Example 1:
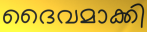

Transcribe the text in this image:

ദൈവമാക്കി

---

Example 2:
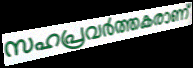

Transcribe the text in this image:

സഹപ്രവർത്തകരാണ്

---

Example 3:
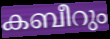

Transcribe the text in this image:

കബീറും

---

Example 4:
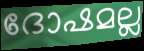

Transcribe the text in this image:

ദോഷമല്ല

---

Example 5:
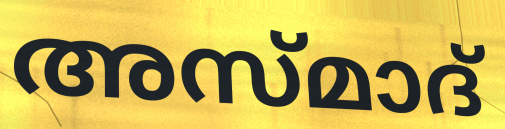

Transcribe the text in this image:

അസ്മാദ്